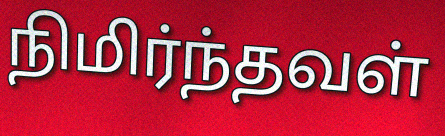
நிமிர்ந்தவள்